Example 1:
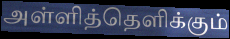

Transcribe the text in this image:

அள்ளித்தெளிக்கும்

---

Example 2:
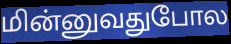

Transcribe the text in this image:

மின்னுவதுபோல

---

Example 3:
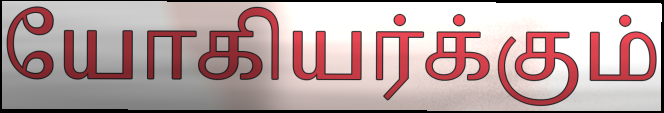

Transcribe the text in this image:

யோகியர்க்கும்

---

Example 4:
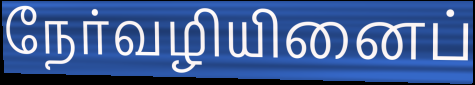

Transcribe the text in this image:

நேர்வழியினைப்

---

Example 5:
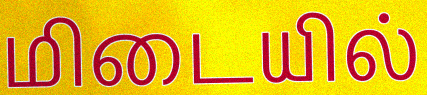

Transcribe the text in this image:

மிடையில்